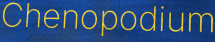
Chenopodium